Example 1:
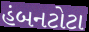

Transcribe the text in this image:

હંબનટોટા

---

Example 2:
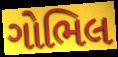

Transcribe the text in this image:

ગોભિલ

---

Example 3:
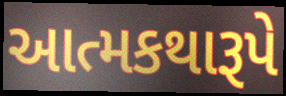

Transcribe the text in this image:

આત્મકથારૂપે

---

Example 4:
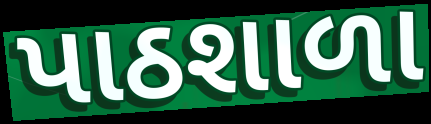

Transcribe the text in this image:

પાઠશાળા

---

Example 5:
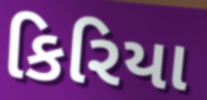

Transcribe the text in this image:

કિરિયા